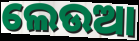
ଲେଉଆ